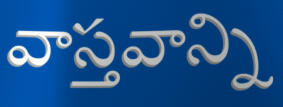
వాస్తవాన్ని